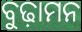
ବୁଢ଼ାମନ